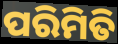
ପରିମିତି